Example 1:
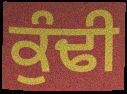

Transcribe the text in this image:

ਕੁੰਢੀ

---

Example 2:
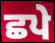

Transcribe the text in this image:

ਛਪੇ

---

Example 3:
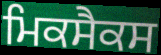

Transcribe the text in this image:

ਮਿਕਸੈਕਸ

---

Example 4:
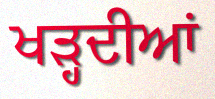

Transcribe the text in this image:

ਖੜ੍ਹਦੀਆਂ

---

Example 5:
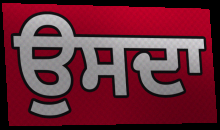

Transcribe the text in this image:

ਉਸਦਾ